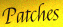
Patches